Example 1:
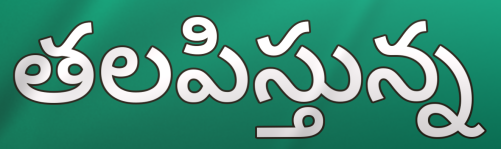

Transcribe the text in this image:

తలపిస్తున్న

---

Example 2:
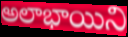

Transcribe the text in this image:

అలాభాయిని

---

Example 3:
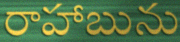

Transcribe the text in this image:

రాహాబును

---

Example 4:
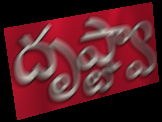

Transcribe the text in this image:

దృష్ట్వా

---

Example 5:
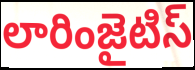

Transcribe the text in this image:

లారింజైటిస్